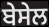
ਬੇਸੇਲ